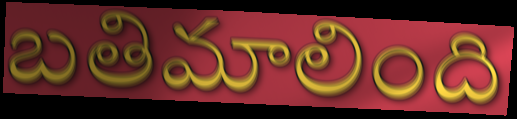
బతిమాలింది